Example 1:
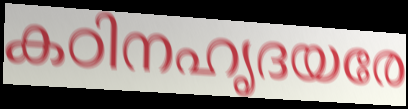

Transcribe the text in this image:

കഠിനഹൃദയരേ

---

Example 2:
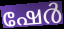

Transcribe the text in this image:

ഷേർ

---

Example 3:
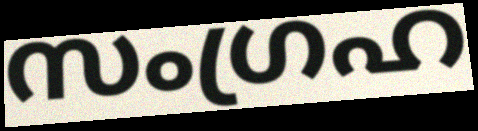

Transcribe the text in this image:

സംഗ്രഹ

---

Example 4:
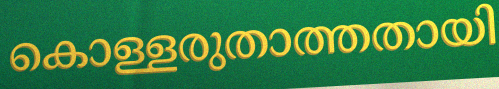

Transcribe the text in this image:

കൊള്ളരുതാത്തതായി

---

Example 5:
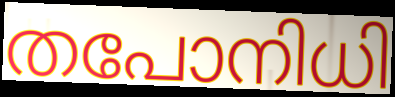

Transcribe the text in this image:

തപോനിധി